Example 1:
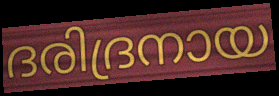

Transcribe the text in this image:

ദരിദ്രനായ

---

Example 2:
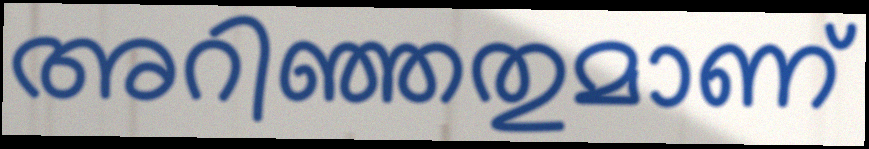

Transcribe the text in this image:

അറിഞ്ഞതുമാണ്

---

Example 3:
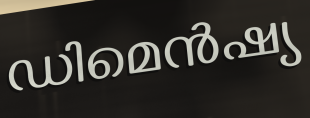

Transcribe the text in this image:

ഡിമെൻഷ്യ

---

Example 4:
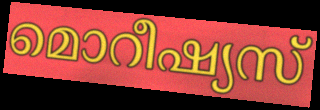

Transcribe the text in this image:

മൊറീഷ്യസ്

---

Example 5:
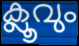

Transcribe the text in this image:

ക്ലൂവും